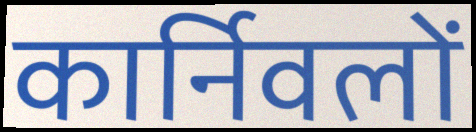
कार्निवलों